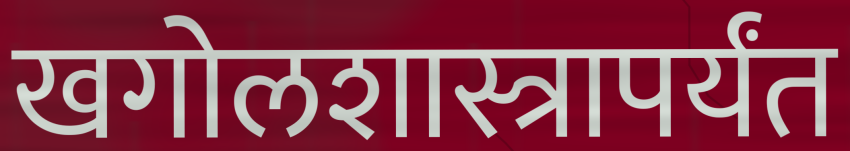
खगोलशास्त्रापर्यंत